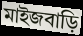
মাইজবাড়ি